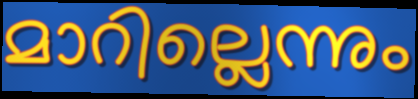
മാറില്ലെന്നും